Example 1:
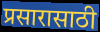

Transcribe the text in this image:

प्रसारासाठी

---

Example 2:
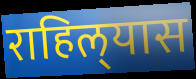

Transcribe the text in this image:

राहिल्यास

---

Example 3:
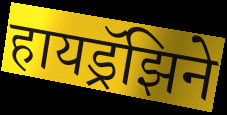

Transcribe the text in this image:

हायड्रॅझिने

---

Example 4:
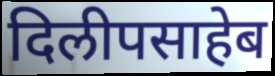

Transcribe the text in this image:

दिलीपसाहेब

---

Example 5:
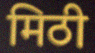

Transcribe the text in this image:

मिठी